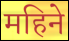
महिने